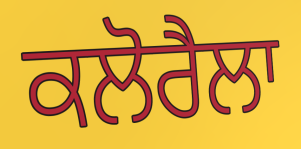
ਕਲੋਰੈਲਾ